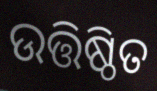
ଉତ୍ତିଷ୍ଠିତ